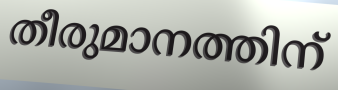
തീരുമാനത്തിന്